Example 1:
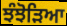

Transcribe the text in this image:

ਝੰਝੋੜਿਆ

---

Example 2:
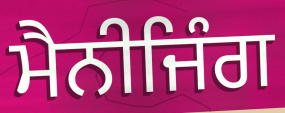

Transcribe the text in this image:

ਮੈਨੀਜਿੰਗ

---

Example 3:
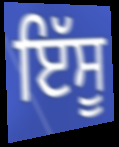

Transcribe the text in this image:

ਇੱਸੂ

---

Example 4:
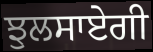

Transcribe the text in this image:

ਝੁਲਸਾਏਗੀ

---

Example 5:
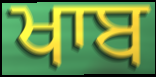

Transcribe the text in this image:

ਖਾਬ